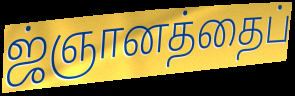
ஜ்ஞானத்தைப்